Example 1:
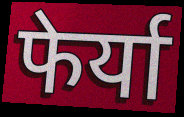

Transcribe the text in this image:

फेर्या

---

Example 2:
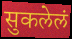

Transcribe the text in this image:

सुकलेलं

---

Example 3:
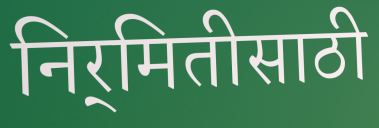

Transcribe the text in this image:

निर्मितीसाठी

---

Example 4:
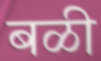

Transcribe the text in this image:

बळी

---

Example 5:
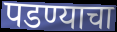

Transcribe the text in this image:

पडण्याचा